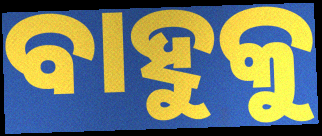
ବାହୁକୁ